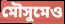
মৌসুমেও